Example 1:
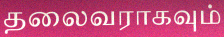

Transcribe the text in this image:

தலைவராகவும்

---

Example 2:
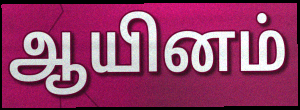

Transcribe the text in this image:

ஆயினம்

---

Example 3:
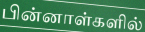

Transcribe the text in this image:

பின்னாள்களில்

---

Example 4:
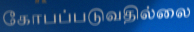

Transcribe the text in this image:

கோபப்படுவதில்லை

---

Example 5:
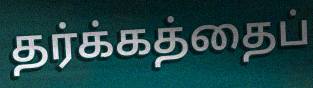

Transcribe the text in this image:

தர்க்கத்தைப்